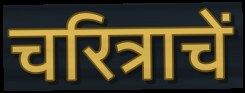
चरित्राचें